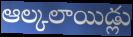
ఆల్కలాయిడ్లు